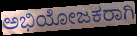
ಅಭಿಯೋಜಕರಾಗಿ